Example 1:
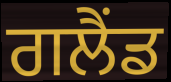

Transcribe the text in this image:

ਗਲੈਂਡ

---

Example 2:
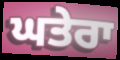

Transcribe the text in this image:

ਘਤੇਰਾ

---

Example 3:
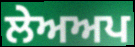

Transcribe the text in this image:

ਲੇਅਅਪ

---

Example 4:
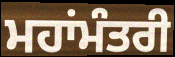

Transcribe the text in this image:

ਮਹਾਂਮੰਤਰੀ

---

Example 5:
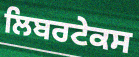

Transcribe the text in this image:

ਲਿਬਰਟੇਕਸ